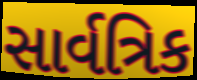
સાર્વત્રિક